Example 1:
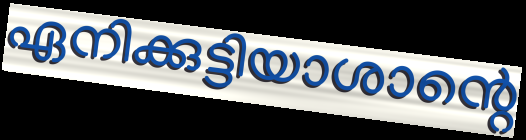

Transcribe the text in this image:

ഏനിക്കുട്ടിയാശാന്റെ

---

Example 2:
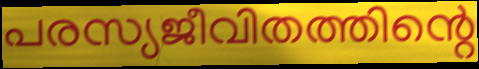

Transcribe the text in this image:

പരസ്യജീവിതത്തിന്റെ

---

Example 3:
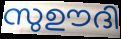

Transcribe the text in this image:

സുഊദി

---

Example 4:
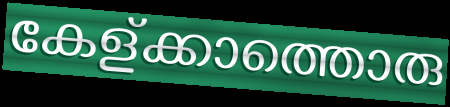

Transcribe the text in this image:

കേള്ക്കാത്തൊരു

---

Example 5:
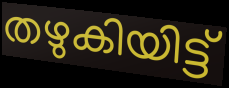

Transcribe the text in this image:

തഴുകിയിട്ട്